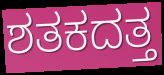
ಶತಕದತ್ತ